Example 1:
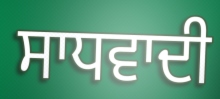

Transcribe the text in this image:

ਸਾਧਵਾਦੀ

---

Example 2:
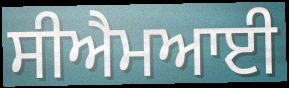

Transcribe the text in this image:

ਸੀਐਮਆਈ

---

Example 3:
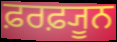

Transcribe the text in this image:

ਫ਼ਰਫ਼੍ਯੂਨ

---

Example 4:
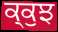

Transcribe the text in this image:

ਕ੍ਕੁਝ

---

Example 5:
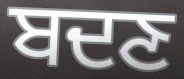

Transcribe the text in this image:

ਬਦਣ